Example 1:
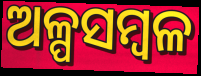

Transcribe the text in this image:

ଅଳ୍ପସମ୍ବଳ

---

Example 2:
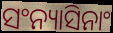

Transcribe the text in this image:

ସଂନ୍ୟାସିନାଂ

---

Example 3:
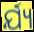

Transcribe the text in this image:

ର୍ଯ୍ୟ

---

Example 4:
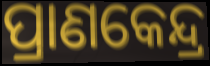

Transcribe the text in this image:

ପ୍ରାଣକେନ୍ଦ୍ର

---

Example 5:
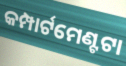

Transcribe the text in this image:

କମ୍ପାର୍ଟମେଣ୍ଟଟା